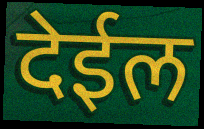
देईल